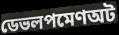
ডেভলপমেণঅট